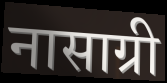
नासाग्री